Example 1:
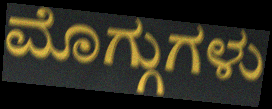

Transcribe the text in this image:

ಮೊಗ್ಗುಗಳು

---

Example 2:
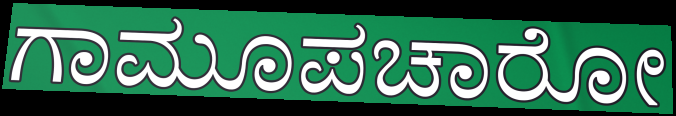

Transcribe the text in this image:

ಗಾಮೂಪಚಾರೋ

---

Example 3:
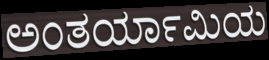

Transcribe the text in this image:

ಅಂತರ್ಯಾಮಿಯ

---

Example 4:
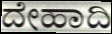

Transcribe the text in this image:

ದೇಹಾದಿ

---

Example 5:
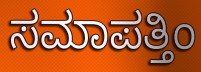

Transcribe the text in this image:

ಸಮಾಪತ್ತಿಂ